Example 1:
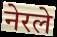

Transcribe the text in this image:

नेरले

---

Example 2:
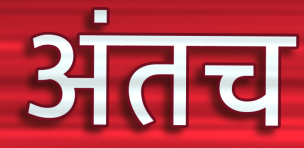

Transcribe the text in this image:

अंतच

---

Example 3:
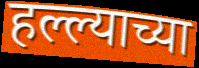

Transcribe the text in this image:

हल्ल्याच्या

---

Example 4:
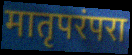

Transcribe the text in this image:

मातृपरंपरा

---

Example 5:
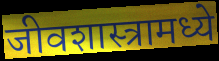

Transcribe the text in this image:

जीवशास्त्रामध्ये